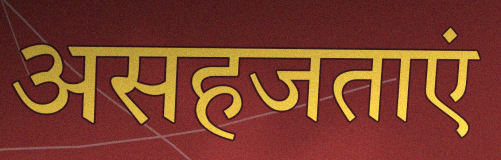
असहजताएं